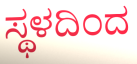
ಸ್ಥಳದಿಂದ